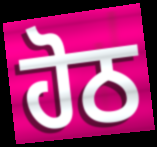
ਹੋਠ